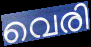
വെരി